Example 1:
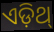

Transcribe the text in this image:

ଏଡ଼ିଥ୍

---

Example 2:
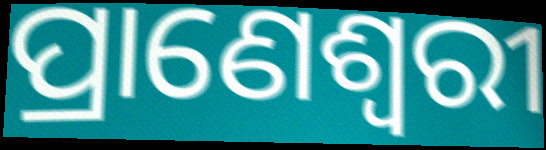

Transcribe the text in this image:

ପ୍ରାଣେଶ୍ୱରୀ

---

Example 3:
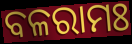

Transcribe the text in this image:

ବଳରାମଃ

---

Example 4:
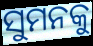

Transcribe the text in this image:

ସୁମନକୁ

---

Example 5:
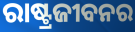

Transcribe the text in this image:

ରାଷ୍ଟ୍ରଜୀବନର